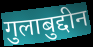
गुलाबुद्दीन